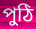
পুঠি